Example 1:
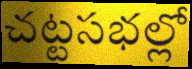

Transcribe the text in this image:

చట్టసభల్లో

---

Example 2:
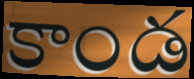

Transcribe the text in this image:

కాండ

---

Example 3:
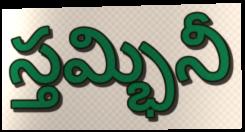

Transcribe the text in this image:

స్తమ్భినీ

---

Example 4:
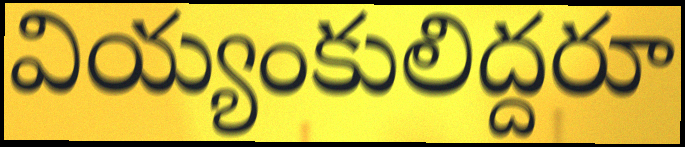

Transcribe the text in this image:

వియ్యంకులిద్దరూ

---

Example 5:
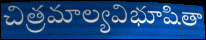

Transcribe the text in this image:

చిత్రమాల్యవిభూషితా